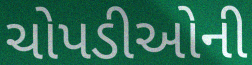
ચોપડીઓની